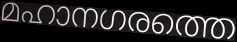
മഹാനഗരത്തെ